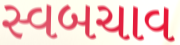
સ્વબચાવ